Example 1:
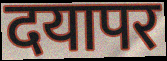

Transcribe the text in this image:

दयापर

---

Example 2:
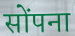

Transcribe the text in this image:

सोंपना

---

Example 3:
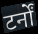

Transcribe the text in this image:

टर्नों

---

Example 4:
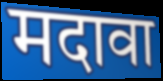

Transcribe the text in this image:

मदावा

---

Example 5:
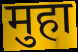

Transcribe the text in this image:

मुहा